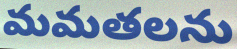
మమతలను